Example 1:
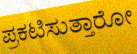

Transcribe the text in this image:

ಪ್ರಕಟಿಸುತ್ತಾರೋ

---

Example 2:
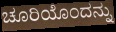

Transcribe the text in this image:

ಚೂರಿಯೊಂದನ್ನು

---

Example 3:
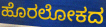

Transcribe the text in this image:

ಹೊರಲೋಕದ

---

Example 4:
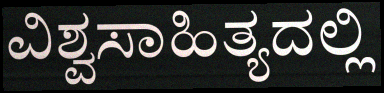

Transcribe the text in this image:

ವಿಶ್ವಸಾಹಿತ್ಯದಲ್ಲಿ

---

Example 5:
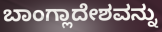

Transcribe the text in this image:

ಬಾಂಗ್ಲಾದೇಶವನ್ನು